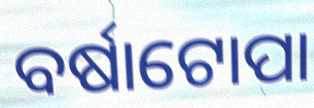
ବର୍ଷାଟୋପା